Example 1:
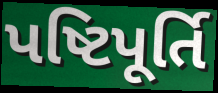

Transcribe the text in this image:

પષ્ટિપૂર્તિ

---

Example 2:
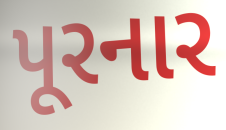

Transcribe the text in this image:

પૂરનાર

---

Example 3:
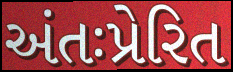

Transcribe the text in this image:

અંતઃપ્રેરિત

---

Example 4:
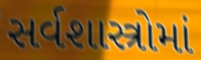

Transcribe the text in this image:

સર્વશાસ્ત્રોમાં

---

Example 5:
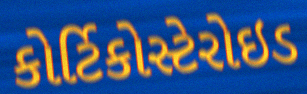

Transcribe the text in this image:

કોર્ટિકોસ્ટેરોઇડ